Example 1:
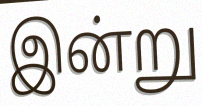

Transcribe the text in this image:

இன்று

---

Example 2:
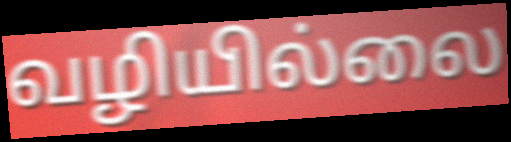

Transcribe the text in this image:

வழியில்லை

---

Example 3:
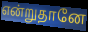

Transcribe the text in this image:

என்றுதானே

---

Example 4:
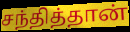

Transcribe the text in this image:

சந்தித்தான்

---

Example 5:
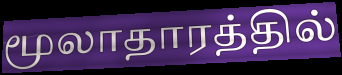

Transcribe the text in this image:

மூலாதாரத்தில்